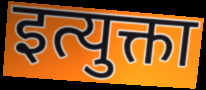
इत्युक्ता